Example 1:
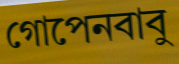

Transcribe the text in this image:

গোপেনবাবু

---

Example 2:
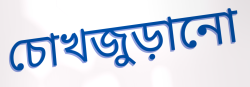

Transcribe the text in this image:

চোখজুড়ানো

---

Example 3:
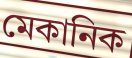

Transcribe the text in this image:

মেকানিক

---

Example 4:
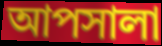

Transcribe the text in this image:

আপসালা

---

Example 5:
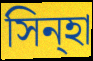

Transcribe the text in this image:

সিন্হা